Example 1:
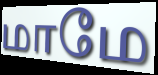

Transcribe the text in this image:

மாமே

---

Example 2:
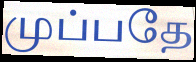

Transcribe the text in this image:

முப்பதே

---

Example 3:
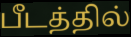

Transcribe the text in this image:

பீடத்தில்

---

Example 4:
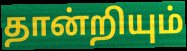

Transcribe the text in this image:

தான்றியும்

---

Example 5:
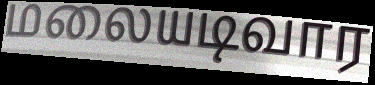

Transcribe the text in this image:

மலையடிவார